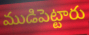
ముడిపెట్టారు